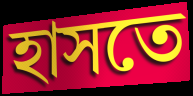
হাসতে